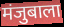
मंजुबाला